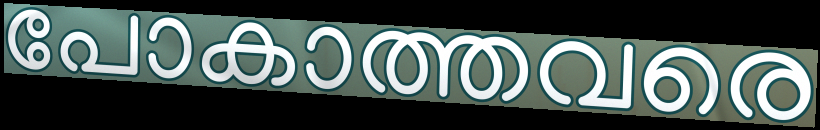
പോകാത്തവരെ